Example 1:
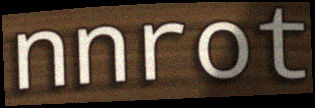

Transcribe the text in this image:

nnrot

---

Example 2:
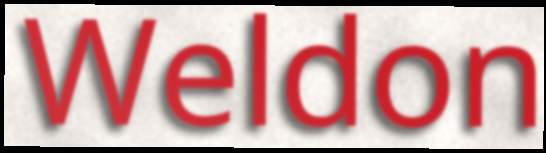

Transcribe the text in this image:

Weldon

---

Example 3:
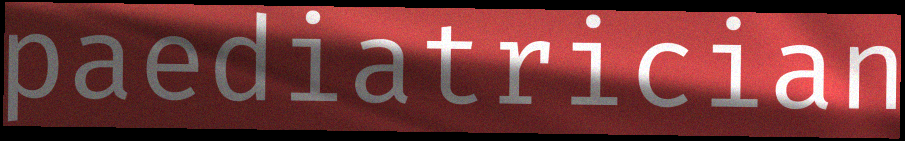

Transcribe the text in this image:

paediatrician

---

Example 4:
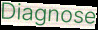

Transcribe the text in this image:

Diagnose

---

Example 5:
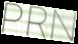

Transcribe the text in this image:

PRN